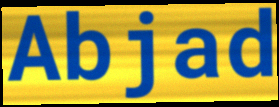
Abjad